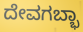
ದೇವಗಬ್ಭಾ